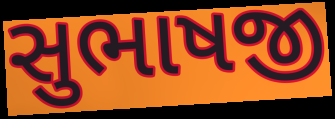
સુભાષજી